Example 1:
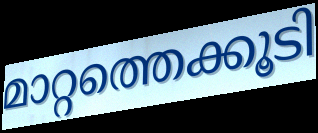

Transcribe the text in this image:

മാറ്റത്തെക്കൂടി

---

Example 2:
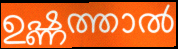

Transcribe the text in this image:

ഉഷ്ണത്താൽ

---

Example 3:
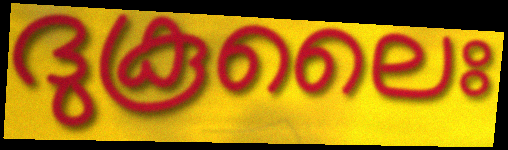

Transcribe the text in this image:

ദുകൂലൈഃ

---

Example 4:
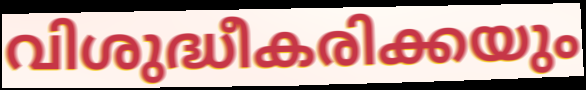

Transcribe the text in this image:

വിശുദ്ധീകരിക്കയും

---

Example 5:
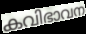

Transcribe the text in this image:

കവിഭാവന